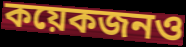
কয়েকজনও